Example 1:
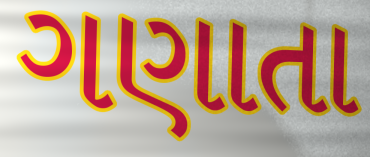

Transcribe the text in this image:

ગણાતા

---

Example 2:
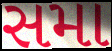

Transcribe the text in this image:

સમા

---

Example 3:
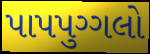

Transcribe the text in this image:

પાપપુગ્ગલો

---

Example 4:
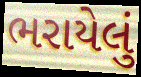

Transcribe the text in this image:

ભરાયેલું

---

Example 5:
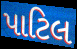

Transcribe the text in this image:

પાટિલ